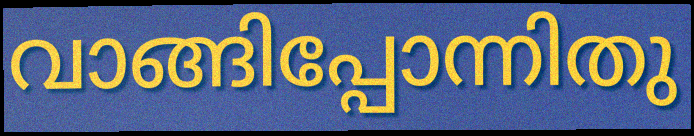
വാങ്ങിപ്പോന്നിതു